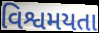
વિશ્વમયતા